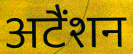
अटैंशन